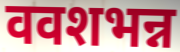
ववशभन्न